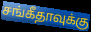
சங்கீதாவுக்கு